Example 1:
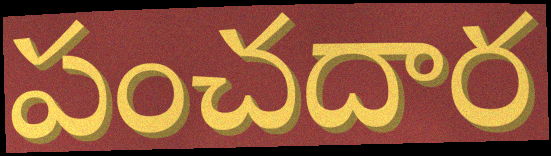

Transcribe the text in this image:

పంచదార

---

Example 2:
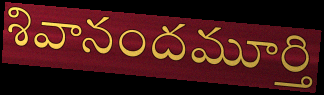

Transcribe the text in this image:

శివానందమూర్తి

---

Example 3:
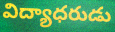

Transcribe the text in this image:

విద్యాధరుడు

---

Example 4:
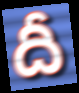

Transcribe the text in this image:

దీ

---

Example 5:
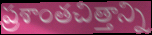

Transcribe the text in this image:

ప్రశాంతచిత్తాన్ని